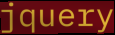
jquery